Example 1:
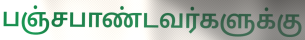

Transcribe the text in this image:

பஞ்சபாண்டவர்களுக்கு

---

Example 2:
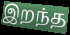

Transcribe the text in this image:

இறந்த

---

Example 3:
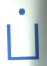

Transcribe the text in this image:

ப்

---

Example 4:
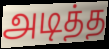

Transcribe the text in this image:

அடித்த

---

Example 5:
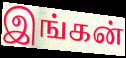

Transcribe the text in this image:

இங்கன்